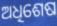
ଅଧିଶେଷ